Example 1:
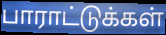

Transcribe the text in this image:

பாராட்டுக்கள்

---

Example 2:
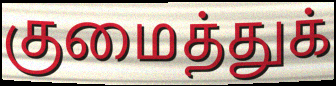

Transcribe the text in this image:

குமைத்துக்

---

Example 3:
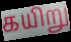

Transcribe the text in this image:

கயிறு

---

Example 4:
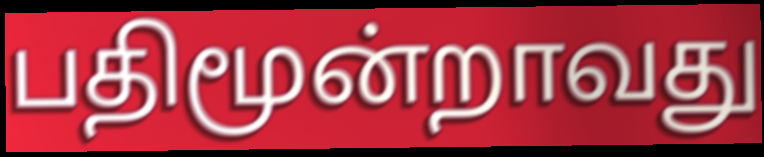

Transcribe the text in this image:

பதிமூன்றாவது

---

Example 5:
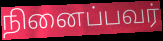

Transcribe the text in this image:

நினைப்பவர்